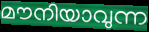
മൗനിയാവുന്ന